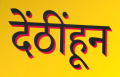
देंठींहून